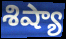
శిష్యా